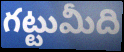
గట్టుమీది